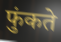
फुंकते